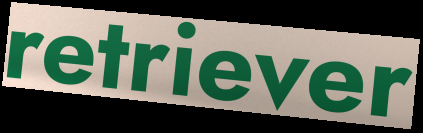
retriever